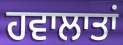
ਹਵਾਲਾਤਾਂ